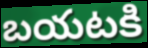
బయటకి